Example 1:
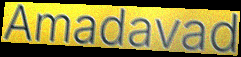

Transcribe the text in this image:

Amadavad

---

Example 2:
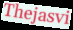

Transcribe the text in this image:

Thejasvi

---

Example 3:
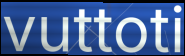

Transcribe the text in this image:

vuttoti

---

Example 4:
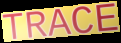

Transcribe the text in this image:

TRACE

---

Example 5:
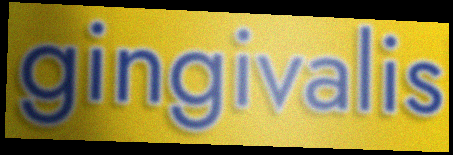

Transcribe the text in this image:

gingivalis